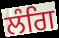
ਲੰਗਿ